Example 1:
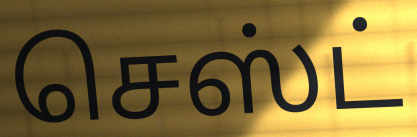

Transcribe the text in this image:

செஸ்ட்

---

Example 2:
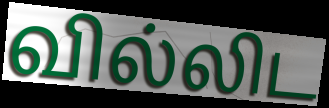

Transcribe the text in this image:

வில்லிட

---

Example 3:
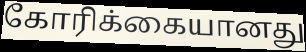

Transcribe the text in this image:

கோரிக்கையானது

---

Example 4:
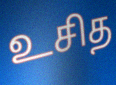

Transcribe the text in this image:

உசித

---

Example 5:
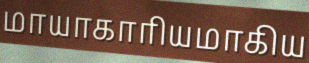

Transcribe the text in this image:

மாயாகாரியமாகிய